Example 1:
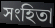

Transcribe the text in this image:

সংহিতা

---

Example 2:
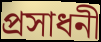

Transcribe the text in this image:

প্রসাধনী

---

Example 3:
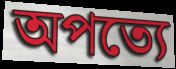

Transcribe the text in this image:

অপত্যে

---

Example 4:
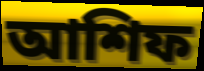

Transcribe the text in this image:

আশিফ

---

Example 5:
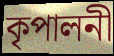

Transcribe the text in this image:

কৃপালনী